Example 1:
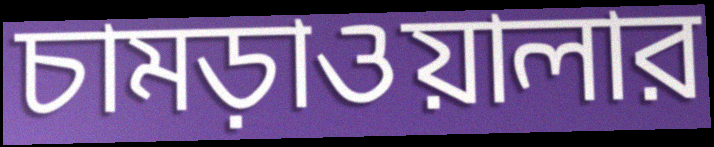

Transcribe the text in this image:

চামড়াওয়ালার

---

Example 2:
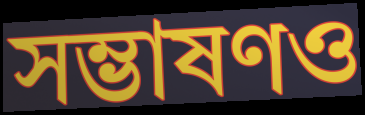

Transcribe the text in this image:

সম্ভাষণও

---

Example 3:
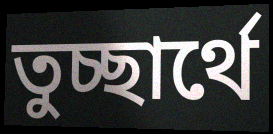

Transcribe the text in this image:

তুচ্ছার্থে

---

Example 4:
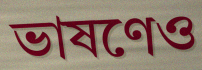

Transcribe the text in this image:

ভাষণেও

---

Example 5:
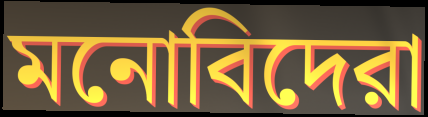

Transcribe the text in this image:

মনোবিদেরা